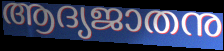
ആദ്യജാതനു